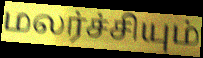
மலர்ச்சியும்